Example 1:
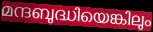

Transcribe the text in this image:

മന്ദബുദ്ധിയെങ്കിലും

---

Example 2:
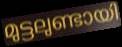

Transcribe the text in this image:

മുട്ടലുണ്ടായി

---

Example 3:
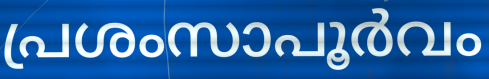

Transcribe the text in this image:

പ്രശംസാപൂർവം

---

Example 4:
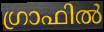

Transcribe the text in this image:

ഗ്രാഫിൽ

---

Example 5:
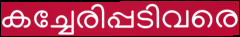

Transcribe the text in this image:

കച്ചേരിപ്പടിവരെ